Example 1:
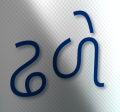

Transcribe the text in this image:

ઢળે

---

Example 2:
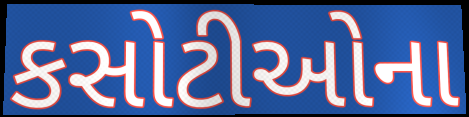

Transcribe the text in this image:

કસોટીઓના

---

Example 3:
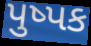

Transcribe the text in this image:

પુષ્પક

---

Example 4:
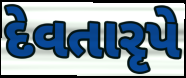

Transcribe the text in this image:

દેવતારૃપે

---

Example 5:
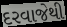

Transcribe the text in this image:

દરવાજેથી